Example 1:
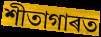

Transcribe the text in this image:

শীতাগাৰত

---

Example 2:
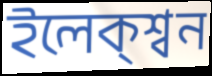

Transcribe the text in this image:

ইলেক্‌শ্বন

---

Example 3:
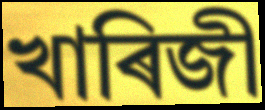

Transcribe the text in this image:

খাৰিজী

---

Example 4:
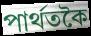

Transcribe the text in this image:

পাৰ্থতকৈ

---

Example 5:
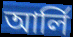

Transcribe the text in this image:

আৰ্লি